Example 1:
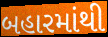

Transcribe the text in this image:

બહારમાંથી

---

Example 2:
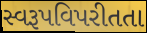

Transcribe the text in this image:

સ્વરૂપવિપરીતતા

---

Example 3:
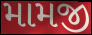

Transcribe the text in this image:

મામજી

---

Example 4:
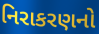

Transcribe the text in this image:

નિરાકરણનો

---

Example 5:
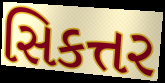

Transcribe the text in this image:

સિકત્તર